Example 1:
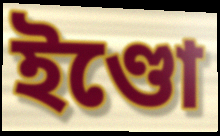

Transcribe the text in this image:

ইণ্ডো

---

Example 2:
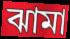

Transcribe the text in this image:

ঝামা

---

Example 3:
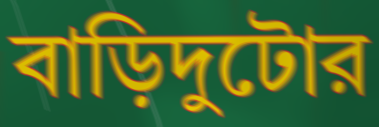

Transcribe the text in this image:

বাড়িদুটোর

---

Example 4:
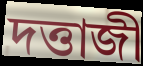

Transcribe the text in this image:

দত্তাজী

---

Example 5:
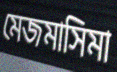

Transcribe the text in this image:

মেজমাসিমা